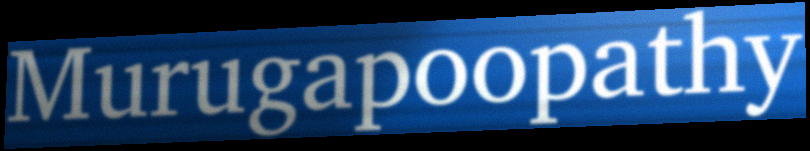
Murugapoopathy